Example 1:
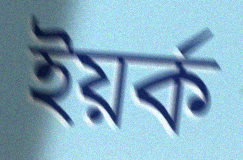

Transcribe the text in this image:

ইয়ৰ্ক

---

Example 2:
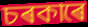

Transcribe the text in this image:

চৰকাৰে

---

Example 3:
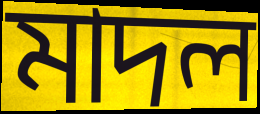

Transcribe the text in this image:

মাদল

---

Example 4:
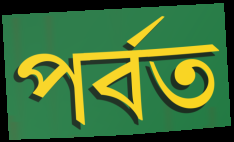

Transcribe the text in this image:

পৰ্বত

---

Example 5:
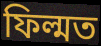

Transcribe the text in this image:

ফিল্মত